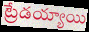
ట్రేడయ్యాయి